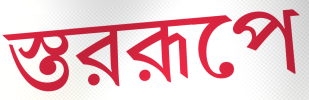
স্তররূপে